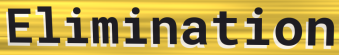
Elimination